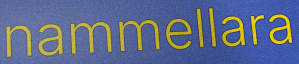
nammellara